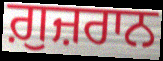
ਗ਼ੁਜ਼ਰਾਨ